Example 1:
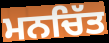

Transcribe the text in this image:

ਮਨਚਿੱਤ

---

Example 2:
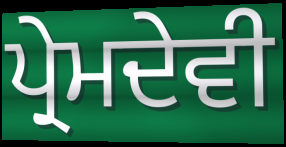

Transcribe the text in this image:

ਪ੍ਰੇਮਦੇਵੀ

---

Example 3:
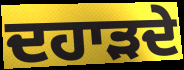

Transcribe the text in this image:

ਦਹਾੜਦੇ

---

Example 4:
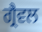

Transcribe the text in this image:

ਗ੍ਰੈਵਲ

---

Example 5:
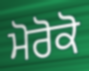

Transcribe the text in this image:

ਮੋਰੋਕੋ